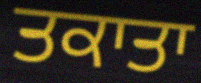
ਤਕਾਤਾ